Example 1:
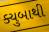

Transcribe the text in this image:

ક્યુબાથી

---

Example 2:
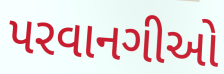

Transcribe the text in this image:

પરવાનગીઓ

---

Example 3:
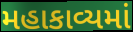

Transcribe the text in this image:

મહાકાવ્યમાં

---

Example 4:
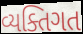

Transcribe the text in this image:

વ્યક્તિગત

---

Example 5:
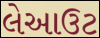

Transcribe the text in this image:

લેઆઉટ